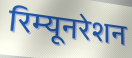
रिम्यूनरेशन